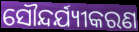
ସୌନ୍ଦର୍ଯ୍ୟୀକରଣ